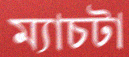
ম্যাচটা